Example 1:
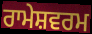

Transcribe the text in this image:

ਰਾਮੇਸ਼ਵਰਮ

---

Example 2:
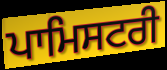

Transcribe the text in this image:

ਪਾਮਿਸਟਰੀ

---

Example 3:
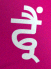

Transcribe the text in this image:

ਫ੍ਰੈਂ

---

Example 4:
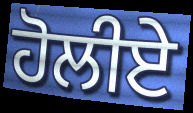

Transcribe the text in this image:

ਹੋਲੀਏ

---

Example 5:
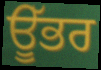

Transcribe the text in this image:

ਊੱਭਰ